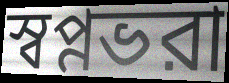
স্বপ্নভরা